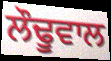
ਲੌਢੂਵਾਲ